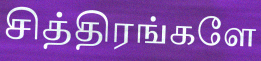
சித்திரங்களே